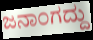
ಜನಾಂಗದ್ದು